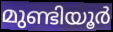
മുണ്ടിയൂർ